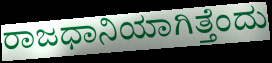
ರಾಜಧಾನಿಯಾಗಿತ್ತೆಂದು